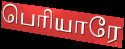
பெரியாரே